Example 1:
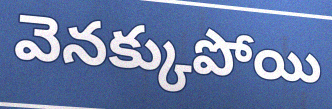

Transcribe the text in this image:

వెనక్కుపోయి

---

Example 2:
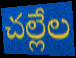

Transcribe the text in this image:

చల్లేల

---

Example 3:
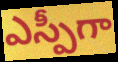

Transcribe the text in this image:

ఎస్పీగా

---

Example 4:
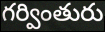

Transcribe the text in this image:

గర్వింతురు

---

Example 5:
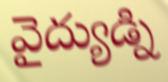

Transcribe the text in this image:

వైద్యుడ్ని